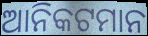
ଆନିକଟମାନ